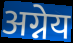
अग्नेय